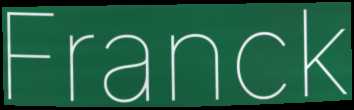
Franck